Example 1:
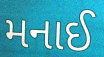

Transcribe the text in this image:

મનાઈ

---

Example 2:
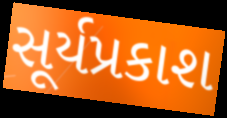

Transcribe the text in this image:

સૂર્યપ્રકાશ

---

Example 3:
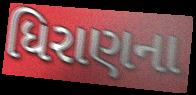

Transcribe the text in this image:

ધિરાણના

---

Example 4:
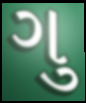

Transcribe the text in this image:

ગુ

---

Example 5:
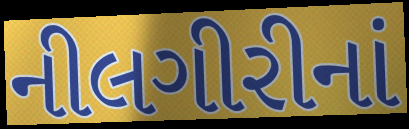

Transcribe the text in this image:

નીલગીરીનાં